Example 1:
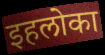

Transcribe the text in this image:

इहलोका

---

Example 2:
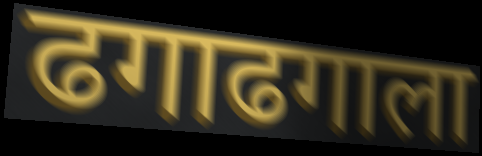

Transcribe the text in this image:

ढगाढगाला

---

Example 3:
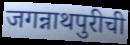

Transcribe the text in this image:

जगन्नाथपुरीची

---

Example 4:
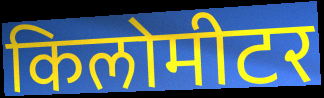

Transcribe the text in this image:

किलोमीटर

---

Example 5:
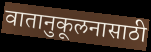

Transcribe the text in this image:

वातानुकूलनासाठी